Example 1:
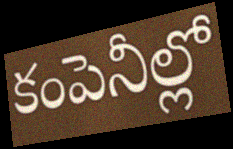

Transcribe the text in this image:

కంపెనీల్లో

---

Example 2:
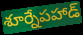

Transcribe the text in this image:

శూర్నేపహాడ్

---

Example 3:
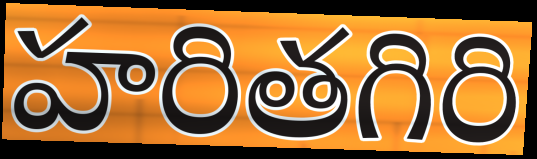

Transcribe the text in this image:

హరితగిరి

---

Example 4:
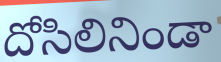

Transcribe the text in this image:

దోసిలినిండా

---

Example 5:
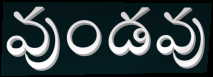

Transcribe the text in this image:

వుండవు